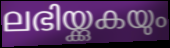
ലഭിയ്ക്കുകയും